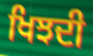
ਖਿਝਦੀ